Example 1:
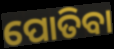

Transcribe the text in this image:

ପୋତିବା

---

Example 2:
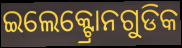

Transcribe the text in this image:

ଇଲେକ୍ଟ୍ରୋନଗୁଡିକ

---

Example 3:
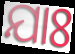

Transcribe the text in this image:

ଯାଃ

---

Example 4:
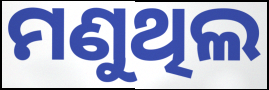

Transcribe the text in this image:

ମଣୁଥିଲ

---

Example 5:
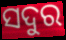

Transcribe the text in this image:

ସଦୁର